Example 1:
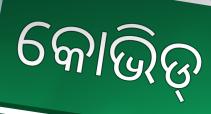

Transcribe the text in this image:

କୋଭିଡ୍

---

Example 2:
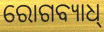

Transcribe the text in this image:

ରୋଗବ୍ୟାଧ୍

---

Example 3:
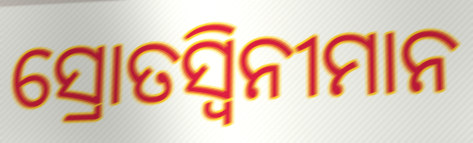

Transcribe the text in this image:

ସ୍ରୋତସ୍ୱିନୀମାନ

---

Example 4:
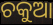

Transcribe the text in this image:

ଚକୁଆ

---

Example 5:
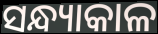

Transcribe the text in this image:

ସନ୍ଧ୍ୟାକାଳ